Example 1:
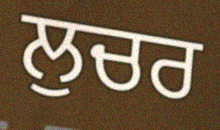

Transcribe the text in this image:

ਲੁਚਰ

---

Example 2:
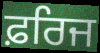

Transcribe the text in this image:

ਫ਼ਰਿਜ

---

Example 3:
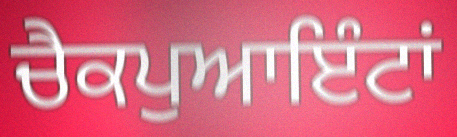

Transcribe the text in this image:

ਚੈਕਪੁਆਇੰਟਾਂ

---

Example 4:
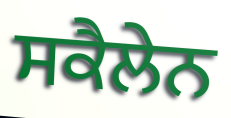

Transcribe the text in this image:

ਸਕੈਲੇਨ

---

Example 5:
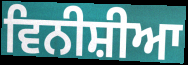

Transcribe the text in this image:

ਵਿਨੀਸ਼ੀਆ